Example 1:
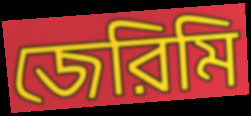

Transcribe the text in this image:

জেরিমি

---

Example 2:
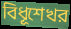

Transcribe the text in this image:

বিধূশেখর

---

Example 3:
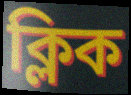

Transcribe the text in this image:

ক্লিক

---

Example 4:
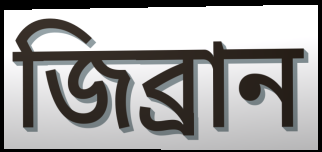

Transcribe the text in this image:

জিব্রান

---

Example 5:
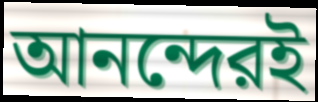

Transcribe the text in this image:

আনন্দেরই